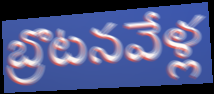
బ్రొటనవేళ్ల